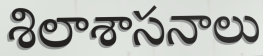
శిలాశాసనాలు